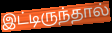
இட்டிருந்தால்